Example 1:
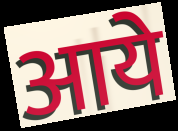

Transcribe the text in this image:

आये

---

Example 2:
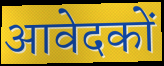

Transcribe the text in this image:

आवेदकों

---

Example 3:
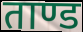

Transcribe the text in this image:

ताण्ड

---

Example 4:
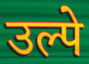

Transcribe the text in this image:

उल्पे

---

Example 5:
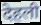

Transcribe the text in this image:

देहली